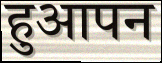
हुआपन